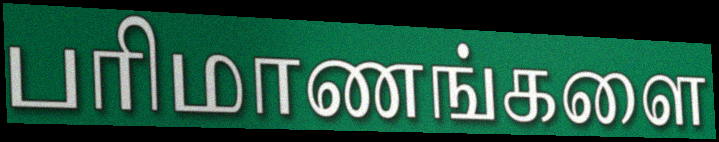
பரிமாணங்களை